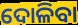
ଦୋଳିବା